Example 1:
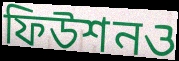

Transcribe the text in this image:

ফিউশনও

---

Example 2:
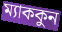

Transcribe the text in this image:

ম্যাককুন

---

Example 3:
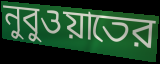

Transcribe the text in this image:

নুবুওয়াতের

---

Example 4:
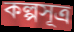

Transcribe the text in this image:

কল্পসূত্র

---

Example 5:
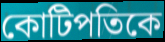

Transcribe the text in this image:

কোটিপতিকে